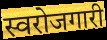
स्वरोजगारी